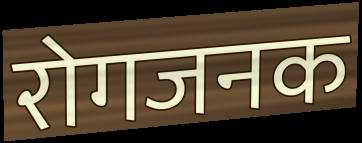
रोगजनक